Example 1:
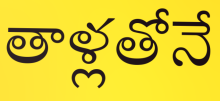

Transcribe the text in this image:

తాళ్లతోనే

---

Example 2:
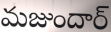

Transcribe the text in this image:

మజుందార్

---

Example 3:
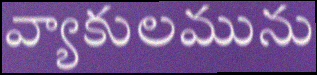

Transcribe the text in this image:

వ్యాకులమును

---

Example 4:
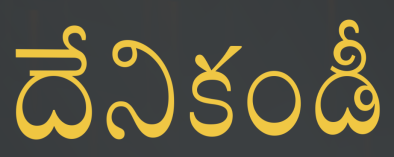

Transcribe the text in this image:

దేనికండీ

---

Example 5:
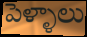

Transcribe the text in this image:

పెళ్ళాలు